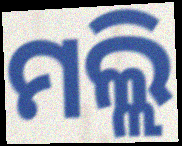
ମଲ୍ଲି